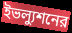
ইভল্যুশনের